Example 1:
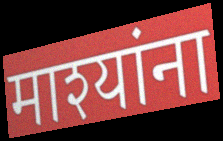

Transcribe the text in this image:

माश्यांना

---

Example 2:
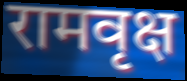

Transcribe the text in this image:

रामवृक्ष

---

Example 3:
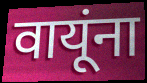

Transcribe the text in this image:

वायूंना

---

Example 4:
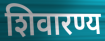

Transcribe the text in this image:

शिवारण्य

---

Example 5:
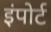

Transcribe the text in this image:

इंपोर्ट